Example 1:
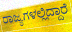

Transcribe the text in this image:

ರಾಜ್ಯಗಳಲ್ಲಿದ್ದಾರೆ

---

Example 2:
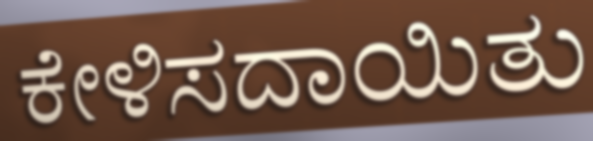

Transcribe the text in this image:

ಕೇಳಿಸದಾಯಿತು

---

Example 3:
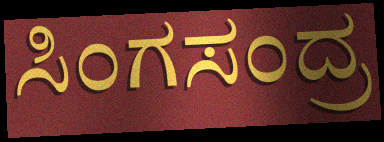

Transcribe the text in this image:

ಸಿಂಗಸಂದ್ರ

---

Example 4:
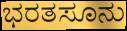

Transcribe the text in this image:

ಭರತಸೂನು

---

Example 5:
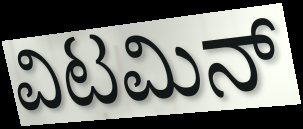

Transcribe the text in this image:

ವಿಟಮಿನ್